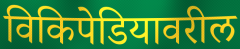
विकिपेडियावरील